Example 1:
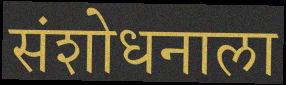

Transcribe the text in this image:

संशोधनाला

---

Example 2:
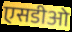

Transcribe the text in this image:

एसडीओ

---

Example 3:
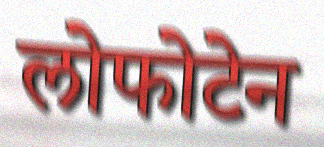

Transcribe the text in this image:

लोफोटेन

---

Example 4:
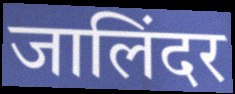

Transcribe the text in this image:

जालिंदर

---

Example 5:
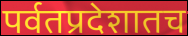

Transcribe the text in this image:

पर्वतप्रदेशातच